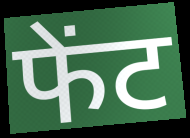
फेंट